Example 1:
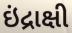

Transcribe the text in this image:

ઇંદ્રાક્ષી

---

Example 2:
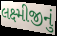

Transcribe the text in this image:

લક્ષ્મીજીનું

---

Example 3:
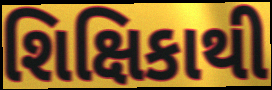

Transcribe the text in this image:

શિક્ષિકાથી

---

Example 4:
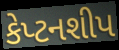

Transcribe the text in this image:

કેપ્ટનશીપ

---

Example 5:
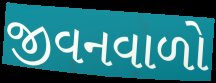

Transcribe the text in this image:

જીવનવાળો